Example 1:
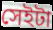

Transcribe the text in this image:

সেইটা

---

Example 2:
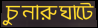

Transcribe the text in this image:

চুনারুঘাটে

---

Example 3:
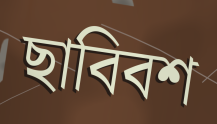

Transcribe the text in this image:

ছাবিবশ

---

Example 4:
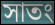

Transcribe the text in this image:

সাতং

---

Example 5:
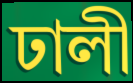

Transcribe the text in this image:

ঢালী